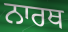
ਨਾਰਥ